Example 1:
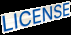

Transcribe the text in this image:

LICENSE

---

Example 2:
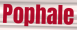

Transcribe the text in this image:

Pophale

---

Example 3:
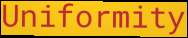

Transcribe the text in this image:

Uniformity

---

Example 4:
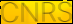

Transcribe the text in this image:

CNRS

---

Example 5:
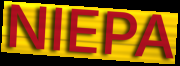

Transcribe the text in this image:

NIEPA